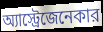
অ্যাস্ট্রেজেনেকার